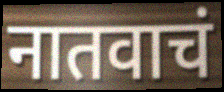
नातवाचं